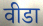
वीडा